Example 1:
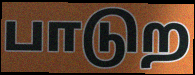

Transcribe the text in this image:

பாடுற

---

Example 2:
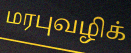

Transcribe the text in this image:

மரபுவழிக்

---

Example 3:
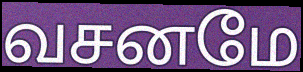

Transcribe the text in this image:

வசனமே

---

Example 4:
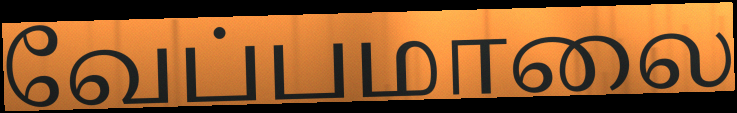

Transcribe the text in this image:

வேப்பமாலை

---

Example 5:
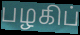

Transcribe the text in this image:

பழகிப்